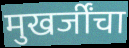
मुखर्जींचा